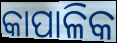
କାପାଳିକ